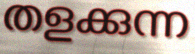
തളക്കുന്ന